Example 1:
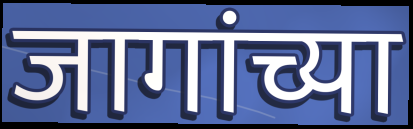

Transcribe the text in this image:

जागांच्या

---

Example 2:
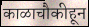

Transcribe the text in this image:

काळाचौकीहून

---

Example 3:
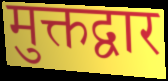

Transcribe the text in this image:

मुक्तद्वार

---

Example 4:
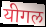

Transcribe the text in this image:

यीगल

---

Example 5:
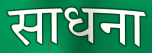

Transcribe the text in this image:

साधना